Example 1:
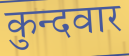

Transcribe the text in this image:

कुन्दवार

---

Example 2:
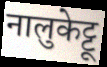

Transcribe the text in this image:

नालुकेट्टू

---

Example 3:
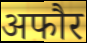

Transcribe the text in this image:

अफौर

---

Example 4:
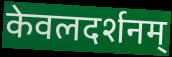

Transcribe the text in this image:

केवलदर्शनम्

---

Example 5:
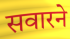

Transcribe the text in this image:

सवारने